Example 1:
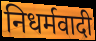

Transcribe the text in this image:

निधर्मवादी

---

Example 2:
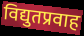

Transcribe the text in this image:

विद्युतप्रवाह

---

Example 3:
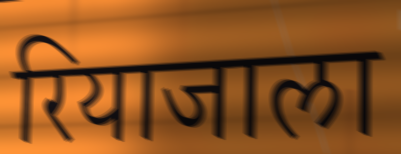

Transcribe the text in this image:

रियाजाला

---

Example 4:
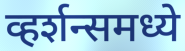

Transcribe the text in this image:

व्हर्शन्समध्ये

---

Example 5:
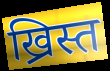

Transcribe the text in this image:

ख्रिस्त